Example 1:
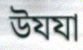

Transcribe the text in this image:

উযযা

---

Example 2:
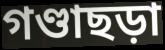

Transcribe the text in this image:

গণ্ডাছড়া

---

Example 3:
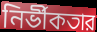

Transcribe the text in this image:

নির্ভীকতার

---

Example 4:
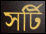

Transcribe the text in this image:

সর্টি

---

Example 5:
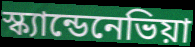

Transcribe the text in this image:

স্ক্যান্ডেনেভিয়া